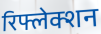
रिफ्लेक्शन